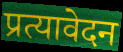
प्रत्यावेदन